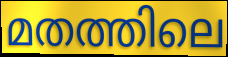
മതത്തിലെ